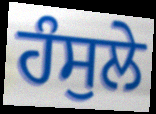
ਹੰਸੁਲੇ